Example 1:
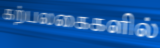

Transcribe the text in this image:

கற்பலகைகளில்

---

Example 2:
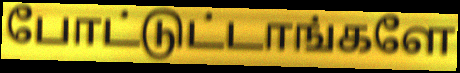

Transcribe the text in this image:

போட்டுட்டாங்களே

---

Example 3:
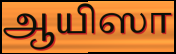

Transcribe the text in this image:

ஆயிஸா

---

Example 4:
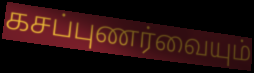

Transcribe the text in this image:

கசப்புணர்வையும்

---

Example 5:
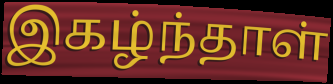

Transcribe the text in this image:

இகழ்ந்தாள்